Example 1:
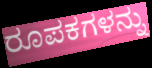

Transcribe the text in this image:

ರೂಪಕಗಳನ್ನು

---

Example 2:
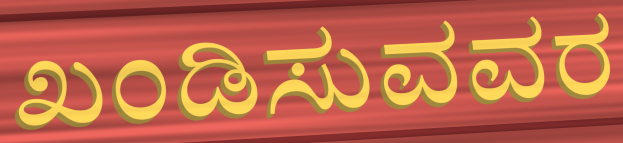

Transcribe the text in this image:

ಖಂಡಿಸುವವರ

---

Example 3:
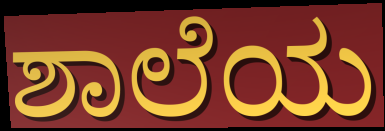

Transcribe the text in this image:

ಶಾಲೆಯ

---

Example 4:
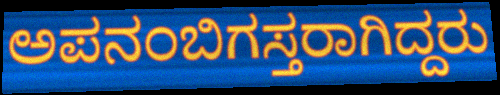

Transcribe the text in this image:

ಅಪನಂಬಿಗಸ್ತರಾಗಿದ್ದರು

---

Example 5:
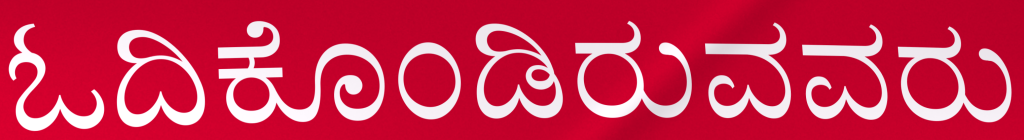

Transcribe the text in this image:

ಓದಿಕೊಂಡಿರುವವರು